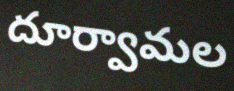
దూర్వామల